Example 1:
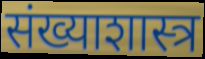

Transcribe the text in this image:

संख्याशास्त्र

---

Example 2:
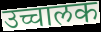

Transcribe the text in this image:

उच्चालक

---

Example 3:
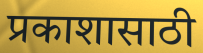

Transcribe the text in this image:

प्रकाशासाठी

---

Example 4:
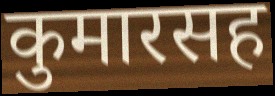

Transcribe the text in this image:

कुमारसह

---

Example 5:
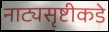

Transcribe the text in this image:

नाट्यसृष्टीकडे